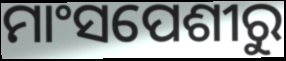
ମାଂସପେଶୀରୁ